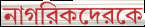
নাগরিকদেরকে